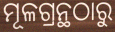
ମୂଳଗ୍ରନ୍ଥଠାରୁ